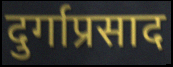
दुर्गाप्रसाद